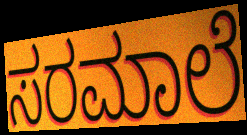
ಸರಮಾಲೆ